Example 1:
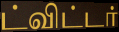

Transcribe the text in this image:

ட்விட்டர்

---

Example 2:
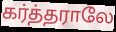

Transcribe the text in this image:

கர்த்தராலே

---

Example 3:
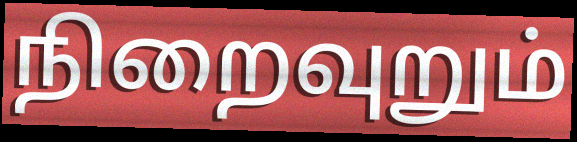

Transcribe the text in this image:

நிறைவுறும்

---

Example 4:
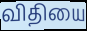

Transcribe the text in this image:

விதியை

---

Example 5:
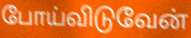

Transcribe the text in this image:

போய்விடுவேன்